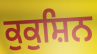
ਕੁਕੁਸ਼ਿਨ